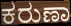
ಕರುಣಾ